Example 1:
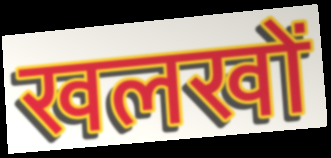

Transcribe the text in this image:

खलखों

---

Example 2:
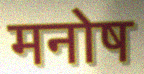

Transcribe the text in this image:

मनोष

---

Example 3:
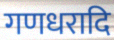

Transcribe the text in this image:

गणधरादि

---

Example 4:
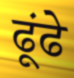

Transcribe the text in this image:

ढूंढे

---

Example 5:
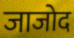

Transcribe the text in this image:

जाजोद